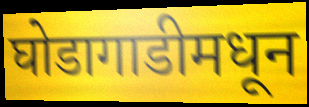
घोडागाडीमधून